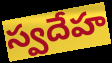
స్వదేహ